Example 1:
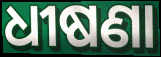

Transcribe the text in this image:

ଧୀଷଣା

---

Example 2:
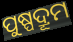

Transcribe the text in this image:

ପୁଷ୍ପଦ୍ରୂମ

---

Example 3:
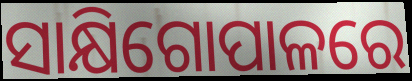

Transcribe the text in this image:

ସାକ୍ଷିଗୋପାଳରେ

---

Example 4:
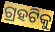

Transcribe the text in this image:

ଗ୍ରହଟିକୁ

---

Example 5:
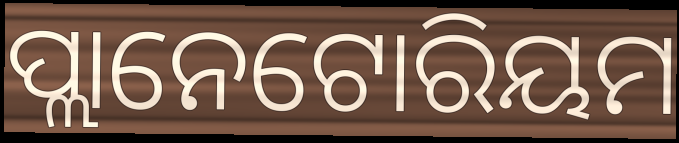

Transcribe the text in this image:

ପ୍ଲାନେଟୋରିୟମ